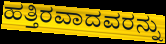
ಹತ್ತಿರವಾದವರನ್ನು